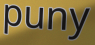
puny